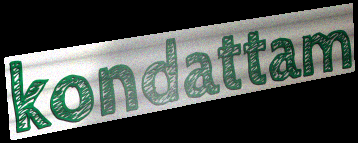
kondattam